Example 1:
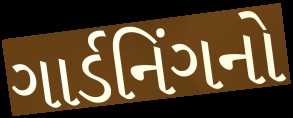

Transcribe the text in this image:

ગાર્ડનિંગનો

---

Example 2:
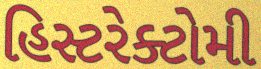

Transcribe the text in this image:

હિસ્ટરેક્ટોમી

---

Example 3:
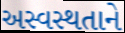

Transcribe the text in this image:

અસ્વસ્થતાને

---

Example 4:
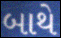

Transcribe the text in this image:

બાથે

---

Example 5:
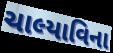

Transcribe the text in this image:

ચાલ્યાવિના